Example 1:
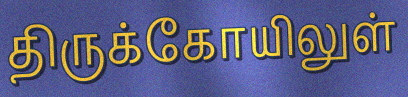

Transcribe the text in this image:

திருக்கோயிலுள்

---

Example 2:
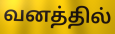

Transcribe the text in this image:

வனத்தில்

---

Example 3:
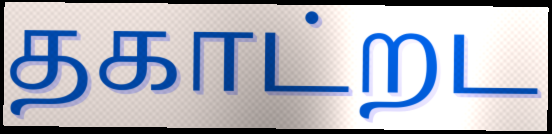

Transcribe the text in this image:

தகாட்றட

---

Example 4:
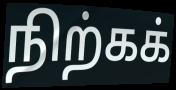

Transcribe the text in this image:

நிற்கக்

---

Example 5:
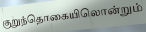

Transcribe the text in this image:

குறுந்தொகையிலொன்றும்